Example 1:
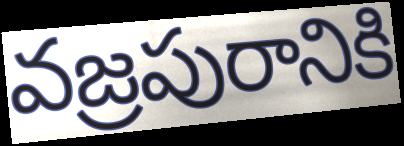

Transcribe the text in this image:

వజ్రపురానికి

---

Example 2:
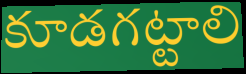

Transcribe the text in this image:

కూడగట్టాలి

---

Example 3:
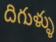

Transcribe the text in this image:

దిగుళ్ళు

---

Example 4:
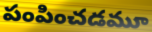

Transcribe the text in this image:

పంపించడమూ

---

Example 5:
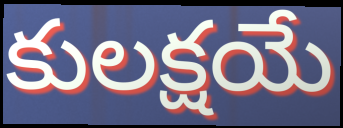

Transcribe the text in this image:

కులక్షయే